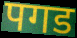
पगड